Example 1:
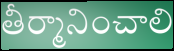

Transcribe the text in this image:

తీర్మానించాలి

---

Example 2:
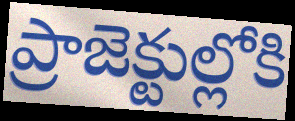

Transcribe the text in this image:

ప్రాజెక్టుల్లోకి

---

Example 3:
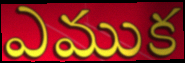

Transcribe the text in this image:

ఎముక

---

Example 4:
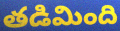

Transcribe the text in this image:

తడిమింది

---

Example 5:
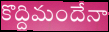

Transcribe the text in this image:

కొద్దిమందేనా